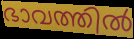
ഭാവത്തിൽ